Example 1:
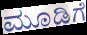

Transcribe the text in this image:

ಮೂಡಿಗೆ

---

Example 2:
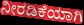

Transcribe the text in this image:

ನೀರಡಿಕೆಯಾಗಿ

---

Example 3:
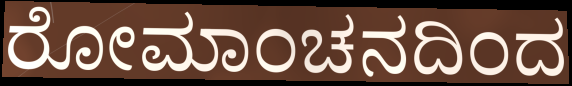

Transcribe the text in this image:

ರೋಮಾಂಚನದಿಂದ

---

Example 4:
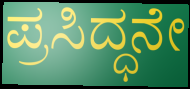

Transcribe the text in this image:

ಪ್ರಸಿದ್ಧನೇ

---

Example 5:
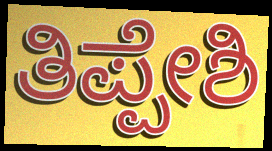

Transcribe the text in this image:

ತಿಪ್ಪೇಶಿ